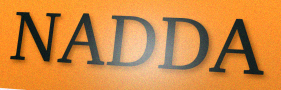
NADDA